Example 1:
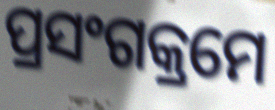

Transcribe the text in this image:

ପ୍ରସଂଗକ୍ରମେ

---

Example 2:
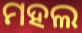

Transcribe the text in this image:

ମହଲ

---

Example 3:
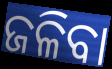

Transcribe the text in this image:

ଜଳିବା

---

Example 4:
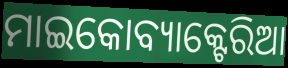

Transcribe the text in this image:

ମାଇକୋବ୍ୟାକ୍ଟେରିଆ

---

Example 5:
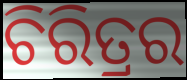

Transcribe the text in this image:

ଚିରିତ୍ରର